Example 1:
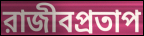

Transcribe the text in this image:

রাজীবপ্রতাপ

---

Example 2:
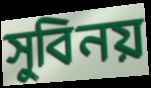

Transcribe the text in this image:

সুবিনয়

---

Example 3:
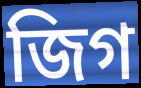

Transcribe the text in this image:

জিগ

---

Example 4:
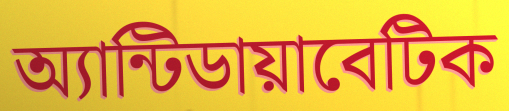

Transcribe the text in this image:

অ্যান্টিডায়াবেটিক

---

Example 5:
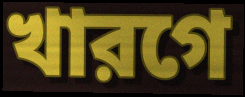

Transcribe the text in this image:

খারগে